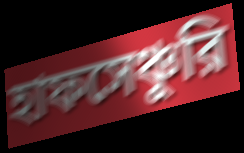
হাফসেঞ্চুরি